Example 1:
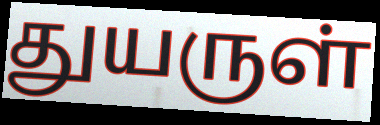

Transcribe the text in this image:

துயருள்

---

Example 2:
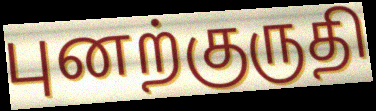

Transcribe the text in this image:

புனற்குருதி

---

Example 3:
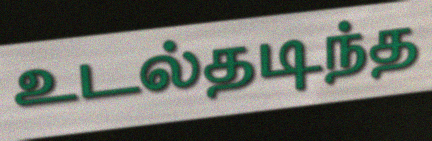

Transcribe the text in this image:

உடல்தடிந்த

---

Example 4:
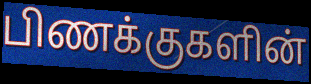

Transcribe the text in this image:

பிணக்குகளின்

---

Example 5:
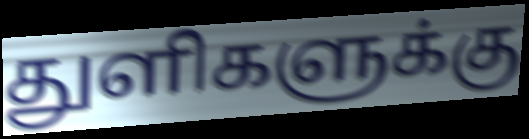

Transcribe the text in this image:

துளிகளுக்கு